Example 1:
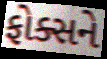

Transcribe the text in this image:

ફોક્સને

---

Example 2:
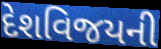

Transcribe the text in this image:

દેશવિજયની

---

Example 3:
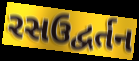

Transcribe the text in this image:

રસઉદ્વર્તન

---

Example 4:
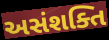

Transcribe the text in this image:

અસંશક્તિ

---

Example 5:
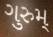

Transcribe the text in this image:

ગુરુમ્